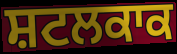
ਸ਼ਟਲਕਾਕ